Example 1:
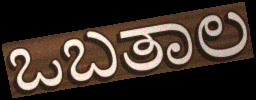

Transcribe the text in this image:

ಒಬತಾಲ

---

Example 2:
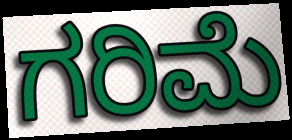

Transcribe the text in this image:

ಗರಿಮೆ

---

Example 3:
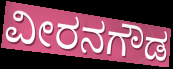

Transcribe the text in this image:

ವೀರನಗೌಡ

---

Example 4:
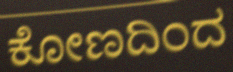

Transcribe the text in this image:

ಕೋಣದಿಂದ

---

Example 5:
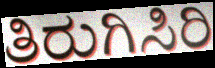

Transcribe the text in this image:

ತಿರುಗಿಸಿರಿ